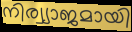
നിര്വ്യാജമായി